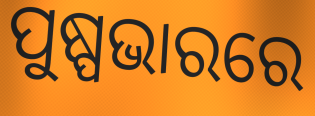
ପୁଷ୍ପଭାରରେ